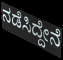
ನಡೆಸಿದ್ದೇನೆ